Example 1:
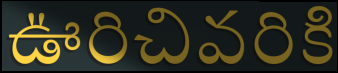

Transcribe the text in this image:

ఊరిచివరికి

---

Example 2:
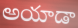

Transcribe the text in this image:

అయాడా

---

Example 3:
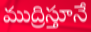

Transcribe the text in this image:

ముద్రిస్తూనే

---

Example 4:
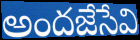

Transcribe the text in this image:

అందజేసేవి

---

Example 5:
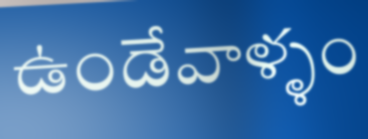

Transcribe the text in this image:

ఉండేవాళ్ళం